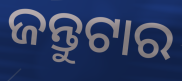
ଜନ୍ତୁଟାର